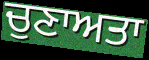
ਚੁਣਾਅਤਾ